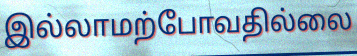
இல்லாமற்போவதில்லை